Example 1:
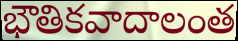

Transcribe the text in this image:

భౌతికవాదాలంత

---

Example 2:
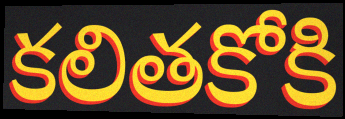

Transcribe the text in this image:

కలితకోకి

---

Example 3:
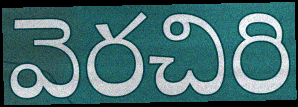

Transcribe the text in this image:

వెరచిరి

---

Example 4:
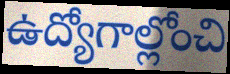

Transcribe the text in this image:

ఉద్యోగాల్లోంచి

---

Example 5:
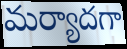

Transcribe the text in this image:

మర్యాదగా